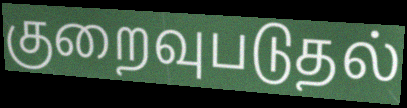
குறைவுபடுதல்